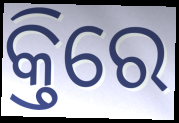
କ୍ତିରେ